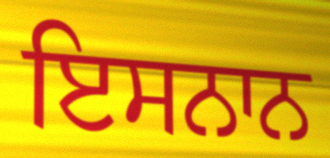
ਇਸਨਾਨ